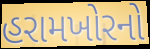
હરામખોરનો